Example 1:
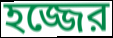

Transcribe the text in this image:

হজ্জের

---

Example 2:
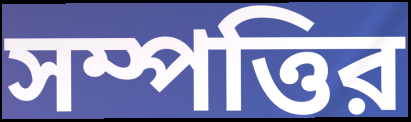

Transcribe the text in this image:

সম্পত্তির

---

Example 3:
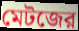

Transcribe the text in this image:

মেটজের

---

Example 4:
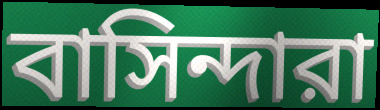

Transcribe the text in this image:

বাসিন্দারা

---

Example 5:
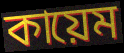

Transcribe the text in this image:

কায়েম